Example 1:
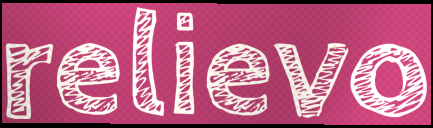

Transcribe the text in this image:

relievo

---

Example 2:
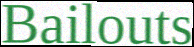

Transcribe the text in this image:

Bailouts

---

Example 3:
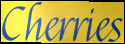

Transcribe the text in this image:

Cherries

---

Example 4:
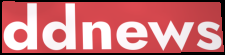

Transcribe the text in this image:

ddnews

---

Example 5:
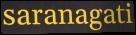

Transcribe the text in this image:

saranagati